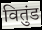
वितुंड